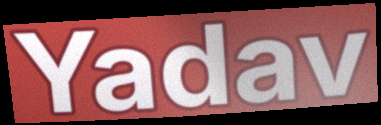
Yadav